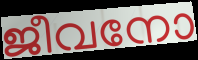
ജീവനോ